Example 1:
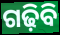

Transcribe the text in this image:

ଗଢ଼ିବି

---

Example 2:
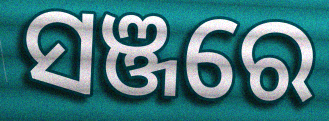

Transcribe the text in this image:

ସଞ୍ଜରେ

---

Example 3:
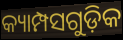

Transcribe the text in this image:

କ୍ୟାମ୍ପସଗୁଡ଼ିକ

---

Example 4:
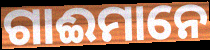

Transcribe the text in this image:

ଗାଈମାନେ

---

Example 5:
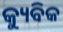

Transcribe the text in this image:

କ୍ୟୁବିକ